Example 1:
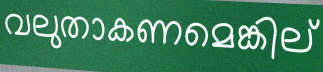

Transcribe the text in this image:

വലുതാകണമെങ്കില്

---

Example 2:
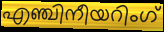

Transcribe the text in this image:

എഞ്ചിനീയറിംഗ്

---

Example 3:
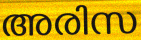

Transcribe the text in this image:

അരിസ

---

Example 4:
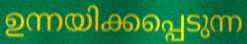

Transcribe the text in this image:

ഉന്നയിക്കപ്പെടുന്ന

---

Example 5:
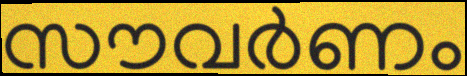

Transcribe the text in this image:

സൗവർണം